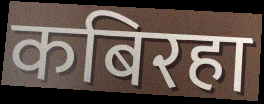
कबिरहा